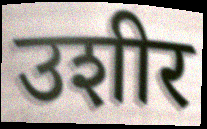
उशीर